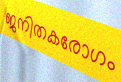
ജനിതകരോഗം